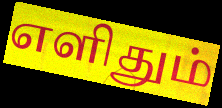
எளிதும்